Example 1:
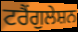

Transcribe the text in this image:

ਟਰੈਂਗੁਲੇਸ਼ਨ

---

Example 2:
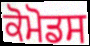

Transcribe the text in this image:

ਕੋਮੋਡਸ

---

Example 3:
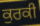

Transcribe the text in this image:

ਕੁਰਕੀ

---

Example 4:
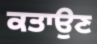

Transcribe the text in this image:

ਕਤਾਉਣ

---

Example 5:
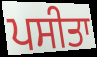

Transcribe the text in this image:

ਪਸੀਤਾ